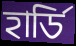
হাৰ্ডি